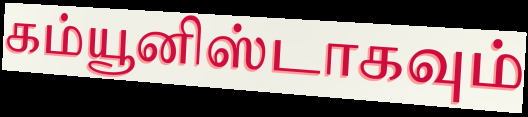
கம்யூனிஸ்டாகவும்